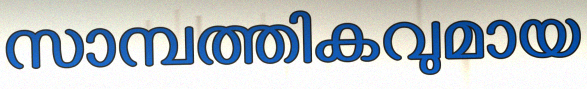
സാമ്പത്തികവുമായ